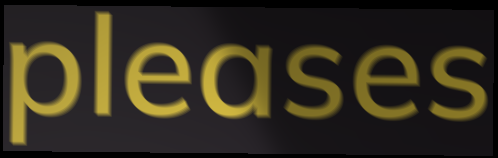
pleases